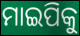
ମାଇପିକୁ